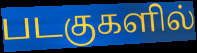
படகுகளில்